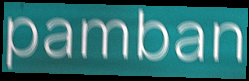
pamban